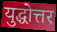
युद्धोत्तर